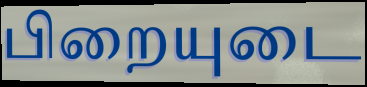
பிறையுடை